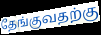
தேங்குவதற்கு